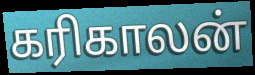
கரிகாலன்